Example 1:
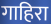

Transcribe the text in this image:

गाहिरा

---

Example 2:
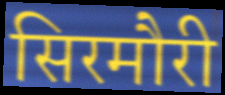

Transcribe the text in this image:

सिरमौरी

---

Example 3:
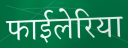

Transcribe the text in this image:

फाईलेरिया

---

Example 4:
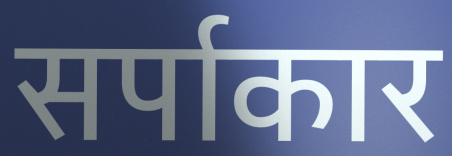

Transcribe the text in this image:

सर्पाकार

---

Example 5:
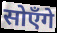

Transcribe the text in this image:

सोएँगे